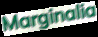
Marginalia